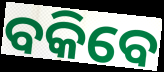
ବକିବେ